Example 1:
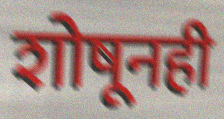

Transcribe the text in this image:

शोषूनही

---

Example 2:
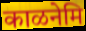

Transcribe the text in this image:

काळनेमि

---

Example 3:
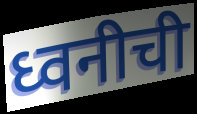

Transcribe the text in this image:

ध्वनीची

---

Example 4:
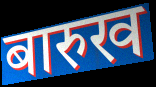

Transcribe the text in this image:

बारुख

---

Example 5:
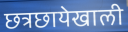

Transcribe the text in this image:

छत्रछायेखाली